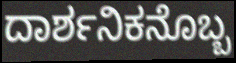
ದಾರ್ಶನಿಕನೊಬ್ಬ